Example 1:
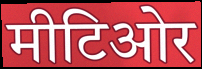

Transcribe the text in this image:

मीटिओर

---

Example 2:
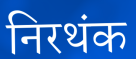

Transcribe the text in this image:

निरथंक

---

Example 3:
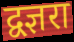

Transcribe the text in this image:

द्वज्ञरा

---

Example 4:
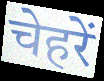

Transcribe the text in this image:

चेहरें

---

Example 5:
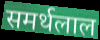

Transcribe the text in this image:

समर्थलाल